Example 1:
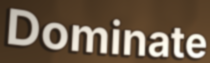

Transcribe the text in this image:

Dominate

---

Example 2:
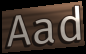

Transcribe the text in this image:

Aad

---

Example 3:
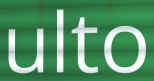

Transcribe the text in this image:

ulto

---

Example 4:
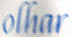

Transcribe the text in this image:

olhar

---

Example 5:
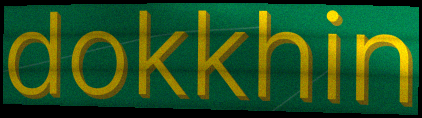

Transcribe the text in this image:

dokkhin